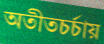
অতীতচর্চায়